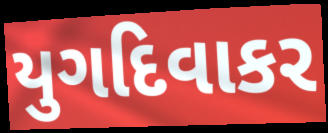
યુગદિવાકર